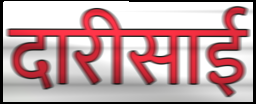
दारीसाई